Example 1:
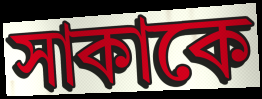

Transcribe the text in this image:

সাকাকে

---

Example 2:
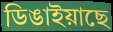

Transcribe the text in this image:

ডিঙাইয়াছে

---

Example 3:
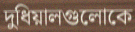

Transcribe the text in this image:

দুধিয়ালগুলোকে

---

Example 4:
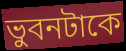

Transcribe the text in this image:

ভুবনটাকে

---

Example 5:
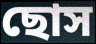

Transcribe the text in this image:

ছোস